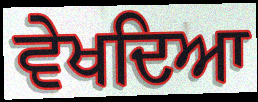
ਵੇਖਦਿਆ